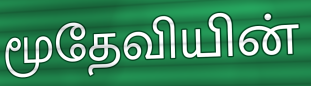
மூதேவியின்